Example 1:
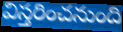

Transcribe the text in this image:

విస్తరించనుంది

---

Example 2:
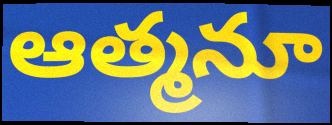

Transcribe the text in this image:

ఆత్మనూ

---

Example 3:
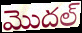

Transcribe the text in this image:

మొదల్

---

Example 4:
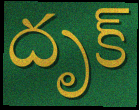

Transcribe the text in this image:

దృక్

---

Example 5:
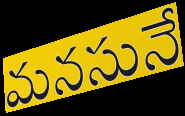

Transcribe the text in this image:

మనసునే